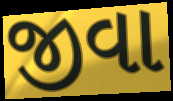
જીવા